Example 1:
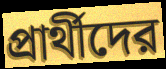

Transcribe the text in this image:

প্রার্থীদের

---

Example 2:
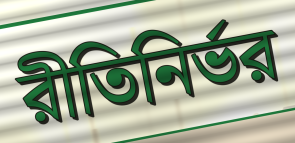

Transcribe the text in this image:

রীতিনির্ভর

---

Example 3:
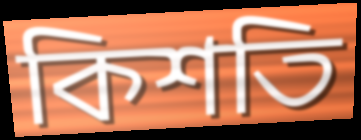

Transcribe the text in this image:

কিশতি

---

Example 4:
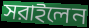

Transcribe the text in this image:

সরাইলেন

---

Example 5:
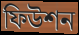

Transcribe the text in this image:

ফিউশন